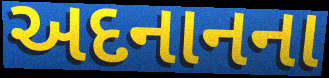
અદનાનના